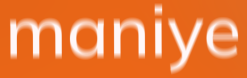
maniye